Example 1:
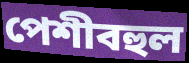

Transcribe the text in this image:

পেশীবহুল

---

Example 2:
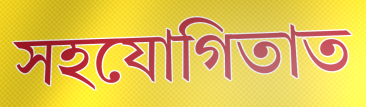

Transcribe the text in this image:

সহযোগিতাত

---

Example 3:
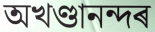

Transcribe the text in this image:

অখণ্ডানন্দৰ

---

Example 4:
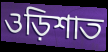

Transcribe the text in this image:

ওড়িশাত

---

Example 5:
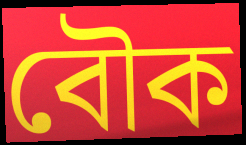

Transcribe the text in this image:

বৌক